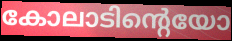
കോലാടിന്റെയോ